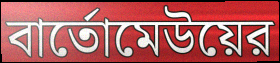
বার্তোমেউয়ের